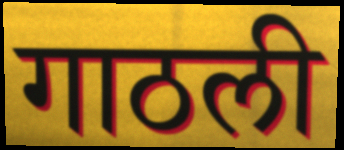
गाठली